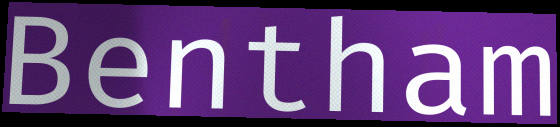
Bentham